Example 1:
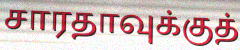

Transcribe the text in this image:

சாரதாவுக்குத்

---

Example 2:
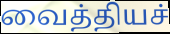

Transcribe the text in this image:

வைத்தியச்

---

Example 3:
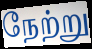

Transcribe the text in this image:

நேற்று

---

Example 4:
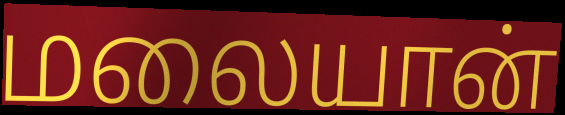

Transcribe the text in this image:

மலையான்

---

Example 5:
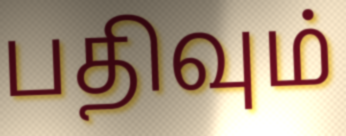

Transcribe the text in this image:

பதிவும்